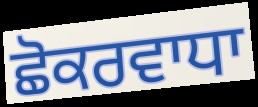
ਛੋਕਰਵਾਧਾ